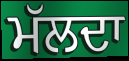
ਮੱਲਦਾ